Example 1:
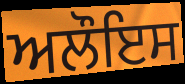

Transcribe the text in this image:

ਅਲੌਇਸ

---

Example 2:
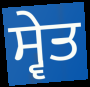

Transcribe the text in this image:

ਸ੍ਵੇਤ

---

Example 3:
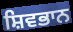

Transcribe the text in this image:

ਸ਼ਿਵਭਾਨ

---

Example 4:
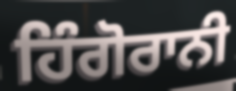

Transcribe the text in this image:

ਹਿੰਗੋਰਾਨੀ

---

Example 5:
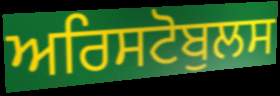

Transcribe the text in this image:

ਅਰਿਸਟੋਬੁਲਸ